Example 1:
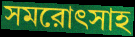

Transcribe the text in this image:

সমরোৎসাহ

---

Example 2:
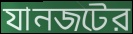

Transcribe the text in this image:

যানজটের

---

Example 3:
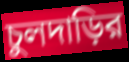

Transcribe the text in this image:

চুলদাড়ির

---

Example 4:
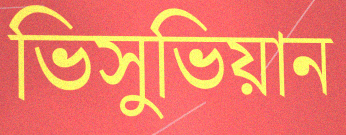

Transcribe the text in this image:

ভিসুভিয়ান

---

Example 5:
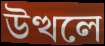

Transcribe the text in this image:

উত্থলে